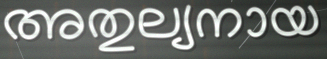
അതുല്യനായ